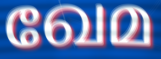
ഖേമ